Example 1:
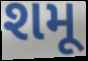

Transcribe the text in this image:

શમૂ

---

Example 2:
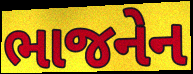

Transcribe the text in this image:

ભાજનેન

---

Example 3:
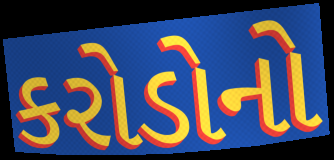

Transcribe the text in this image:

કરોડોનો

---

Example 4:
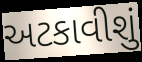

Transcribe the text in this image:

અટકાવીશું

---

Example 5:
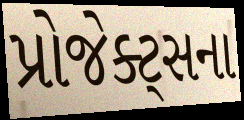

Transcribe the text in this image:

પ્રોજેક્ટ્સના